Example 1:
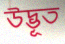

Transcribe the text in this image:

উদ্ভূত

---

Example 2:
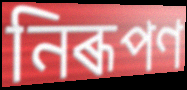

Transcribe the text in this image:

নিৰূপণ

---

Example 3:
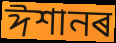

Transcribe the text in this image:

ঈশানৰ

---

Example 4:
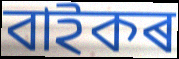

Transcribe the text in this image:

বাইকৰ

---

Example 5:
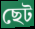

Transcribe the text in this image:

ছেট